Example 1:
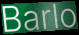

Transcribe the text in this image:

Barlo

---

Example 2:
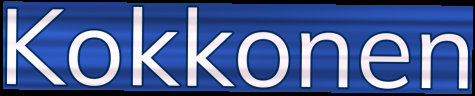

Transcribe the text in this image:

Kokkonen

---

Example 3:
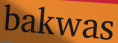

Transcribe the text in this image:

bakwas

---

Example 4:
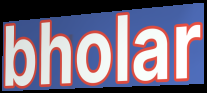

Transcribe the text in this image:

bholar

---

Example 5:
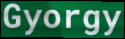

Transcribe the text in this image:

Gyorgy